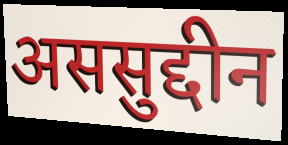
अससुद्दीन